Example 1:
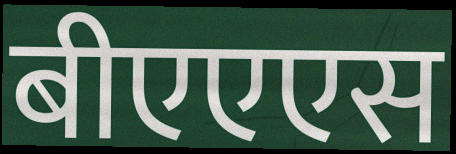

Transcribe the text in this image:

बीएएएस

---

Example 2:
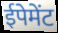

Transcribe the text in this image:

ईपेमेंट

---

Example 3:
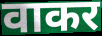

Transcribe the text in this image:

वाकर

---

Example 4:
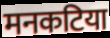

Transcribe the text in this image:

मनकटिया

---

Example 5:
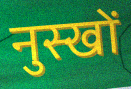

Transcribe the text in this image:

नुस्‍खों